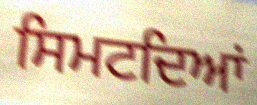
ਸਿਮਟਦਿਆਂ